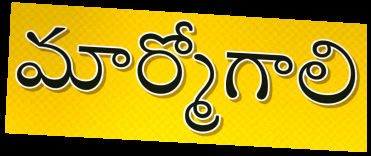
మార్మోగాలి